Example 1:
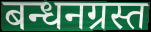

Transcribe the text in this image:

बन्धनग्रस्त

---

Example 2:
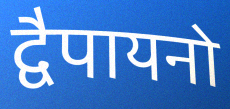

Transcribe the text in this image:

द्वैपायनो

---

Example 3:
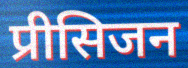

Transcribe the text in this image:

प्रीसिजन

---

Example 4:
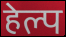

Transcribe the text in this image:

हेल्‍प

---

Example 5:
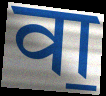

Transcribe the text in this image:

वा॒